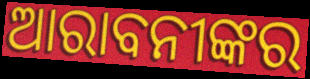
ଆରାବନୀଙ୍କର